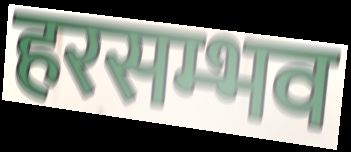
हरसम्भव